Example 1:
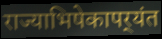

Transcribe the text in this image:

राज्याभिषेकापर्यंत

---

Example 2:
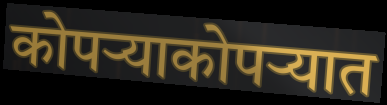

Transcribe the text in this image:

कोपऱ्याकोपऱ्यात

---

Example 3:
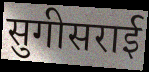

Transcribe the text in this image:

सुगीसराई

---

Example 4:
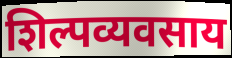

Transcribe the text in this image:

शिल्पव्यवसाय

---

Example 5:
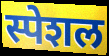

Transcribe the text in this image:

स्पेशल